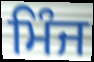
ਮਿੰਜ